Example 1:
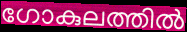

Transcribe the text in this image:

ഗോകുലത്തിൽ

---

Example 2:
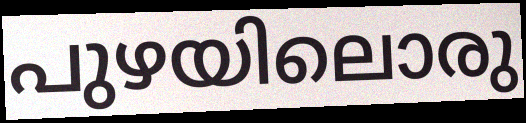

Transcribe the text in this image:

പുഴയിലൊരു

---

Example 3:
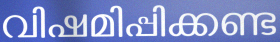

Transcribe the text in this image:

വിഷമിപ്പിക്കണ്ട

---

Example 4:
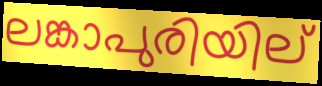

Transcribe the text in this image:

ലങ്കാപുരിയില്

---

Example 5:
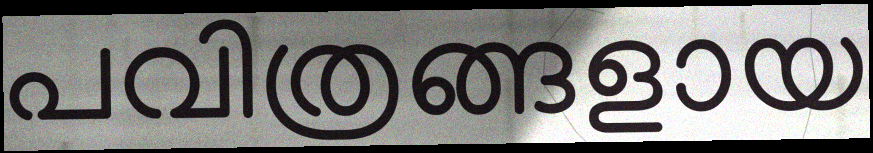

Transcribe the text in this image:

പവിത്രങ്ങളായ